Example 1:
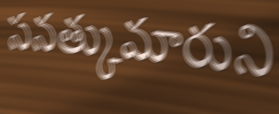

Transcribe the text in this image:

సనత్కుమారుని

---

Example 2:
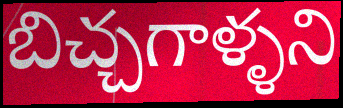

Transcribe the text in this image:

బిచ్చగాళ్ళని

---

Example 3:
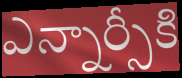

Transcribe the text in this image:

ఎన్నార్సీకి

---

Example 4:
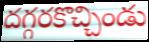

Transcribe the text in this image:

దగ్గరకొచ్చిండు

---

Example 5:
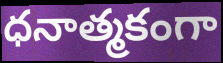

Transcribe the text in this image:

ధనాత్మకంగా